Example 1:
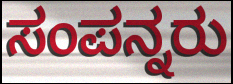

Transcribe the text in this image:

ಸಂಪನ್ನರು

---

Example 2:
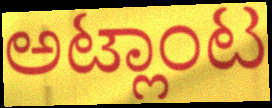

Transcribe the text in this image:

ಅಟ್ಲಾಂಟ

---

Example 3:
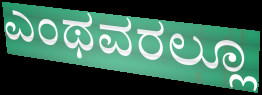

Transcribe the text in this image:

ಎಂಥವರಲ್ಲೂ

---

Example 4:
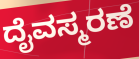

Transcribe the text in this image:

ದೈವಸ್ಮರಣೆ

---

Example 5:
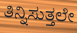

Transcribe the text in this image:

ತಿನ್ನಿಸುತ್ತಲೇ